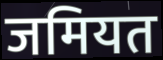
जमियत